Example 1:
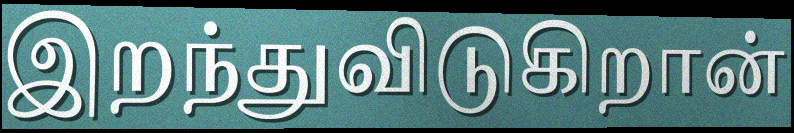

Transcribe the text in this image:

இறந்துவிடுகிறான்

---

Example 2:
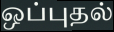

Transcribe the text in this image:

ஒப்புதல்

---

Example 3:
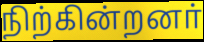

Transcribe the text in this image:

நிற்கின்றனர்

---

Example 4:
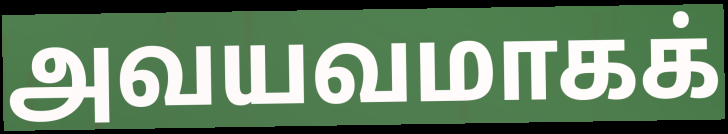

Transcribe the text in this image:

அவயவமாகக்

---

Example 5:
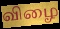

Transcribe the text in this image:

விழை